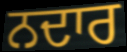
ਨਦਾਰ